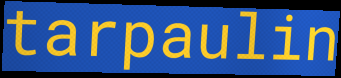
tarpaulin